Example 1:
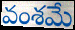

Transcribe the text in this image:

వంశమే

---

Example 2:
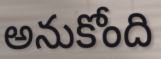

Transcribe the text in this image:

అనుకోంది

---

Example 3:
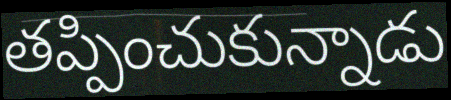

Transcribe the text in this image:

తప్పించుకున్నాడు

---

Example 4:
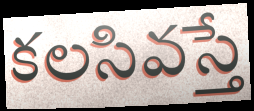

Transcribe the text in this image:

కలసివస్తే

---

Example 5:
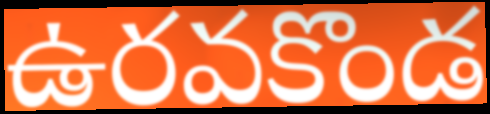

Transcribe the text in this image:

ఉరవకొండ